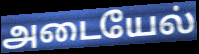
அடையேல்